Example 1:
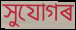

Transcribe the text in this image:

সুযোগৰ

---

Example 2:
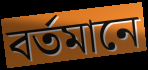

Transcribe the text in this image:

বৰ্তমানে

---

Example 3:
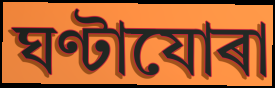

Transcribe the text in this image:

ঘণ্টাযোৰা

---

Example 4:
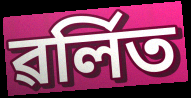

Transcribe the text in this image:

ৱৰ্লিত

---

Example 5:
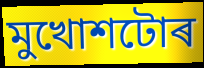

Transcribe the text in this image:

মুখোশটোৰ